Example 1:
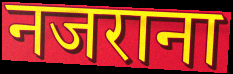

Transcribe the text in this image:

नजराना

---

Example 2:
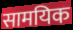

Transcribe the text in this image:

सामयिक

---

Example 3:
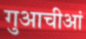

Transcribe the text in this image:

गुआचीआं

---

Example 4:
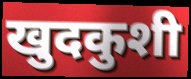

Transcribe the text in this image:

खुदकुशी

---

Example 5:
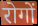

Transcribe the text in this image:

रोगों